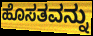
ಹೊಸತವನ್ನು